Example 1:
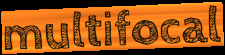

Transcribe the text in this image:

multifocal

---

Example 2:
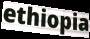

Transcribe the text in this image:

ethiopia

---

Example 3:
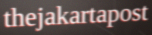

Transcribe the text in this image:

thejakartapost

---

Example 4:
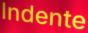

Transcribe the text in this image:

Indente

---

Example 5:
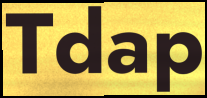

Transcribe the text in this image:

Tdap